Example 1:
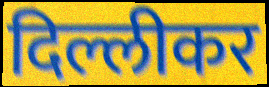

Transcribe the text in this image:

दिल्लीकर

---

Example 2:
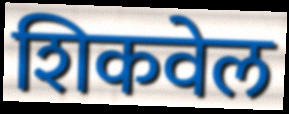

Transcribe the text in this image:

शिकवेल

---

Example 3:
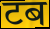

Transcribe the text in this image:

टब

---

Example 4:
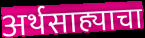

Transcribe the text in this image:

अर्थसाह्याचा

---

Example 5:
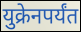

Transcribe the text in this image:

युक्रेनपर्यंत